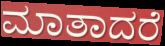
ಮಾತಾದರೆ